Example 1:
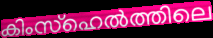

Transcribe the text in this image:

കിംസ്ഹെൽത്തിലെ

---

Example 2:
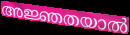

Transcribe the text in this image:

അജ്ഞതയാൽ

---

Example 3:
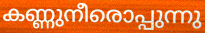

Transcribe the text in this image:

കണ്ണുനീരൊപ്പുന്നു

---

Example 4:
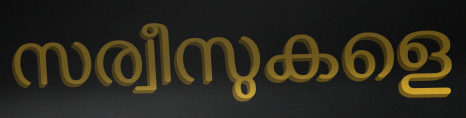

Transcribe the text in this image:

സര്വീസുകളെ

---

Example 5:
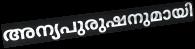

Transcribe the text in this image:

അന്യപുരുഷനുമായി